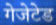
गेजेटेड